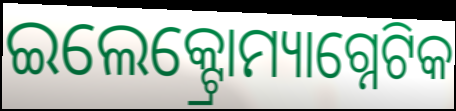
ଇଲେକ୍ଟ୍ରୋମ୍ୟାଗ୍ନେଟିକ